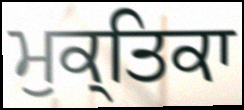
ਮੁਕ੍ਤਿਕਾ